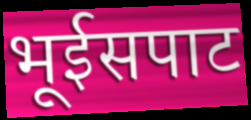
भूईसपाट